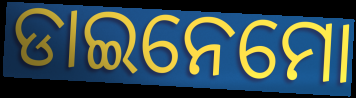
ଡାଇନେମୋ